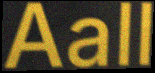
Aall